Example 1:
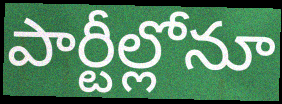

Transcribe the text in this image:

పార్టీల్లోనూ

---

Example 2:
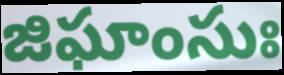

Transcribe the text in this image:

జిఘాంసుః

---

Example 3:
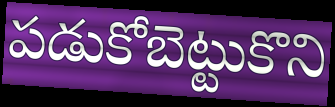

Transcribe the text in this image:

పడుకోబెట్టుకొని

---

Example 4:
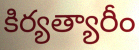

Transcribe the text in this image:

కిర్యత్యారీం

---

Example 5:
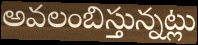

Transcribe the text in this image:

అవలంబిస్తున్నట్లు